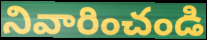
నివారించండి